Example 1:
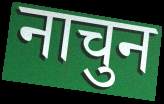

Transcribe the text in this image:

नाचुन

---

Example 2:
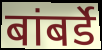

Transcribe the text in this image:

बांबर्डे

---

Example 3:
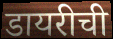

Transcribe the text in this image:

डायरीची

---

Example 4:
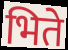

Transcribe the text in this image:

भिते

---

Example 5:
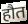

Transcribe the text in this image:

हौत